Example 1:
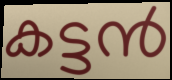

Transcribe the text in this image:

കട്ടൻ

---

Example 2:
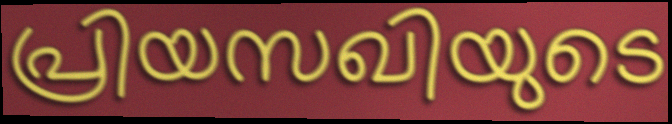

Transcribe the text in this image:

പ്രിയസഖിയുടെ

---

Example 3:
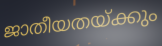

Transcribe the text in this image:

ജാതീയതയ്ക്കും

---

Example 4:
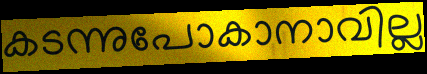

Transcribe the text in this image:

കടന്നുപോകാനാവില്ല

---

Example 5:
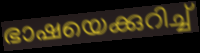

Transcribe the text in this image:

ഭാഷയെക്കുറിച്ച്